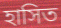
হাসিত